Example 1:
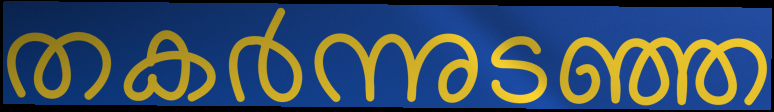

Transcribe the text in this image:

തകർന്നുടഞ്ഞ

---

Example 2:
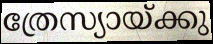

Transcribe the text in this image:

ത്രേസ്യായ്ക്കു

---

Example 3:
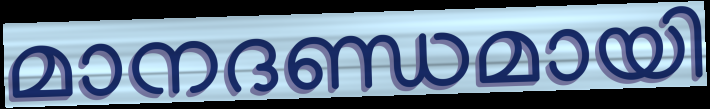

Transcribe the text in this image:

മാനദണ്ഡമായി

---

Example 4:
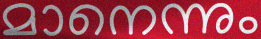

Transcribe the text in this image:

മാനെന്നും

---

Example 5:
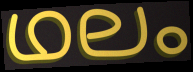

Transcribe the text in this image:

ഥലം